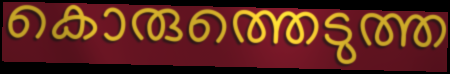
കൊരുത്തെടുത്ത